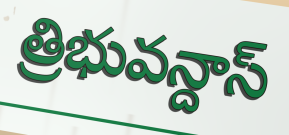
త్రిభువన్దాస్